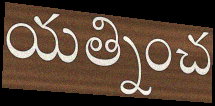
యత్నించ